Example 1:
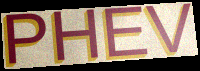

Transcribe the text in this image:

PHEV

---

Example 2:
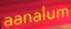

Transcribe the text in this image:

aanalum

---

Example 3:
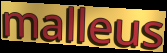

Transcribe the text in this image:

malleus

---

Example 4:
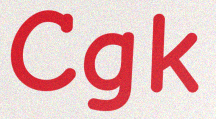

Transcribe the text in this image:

Cgk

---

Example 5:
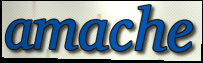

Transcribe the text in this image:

amache